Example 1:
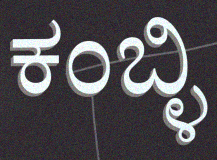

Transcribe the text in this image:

ಕಂಬ್ಳಿ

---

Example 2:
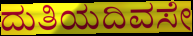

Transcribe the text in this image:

ದುತಿಯದಿವಸೇ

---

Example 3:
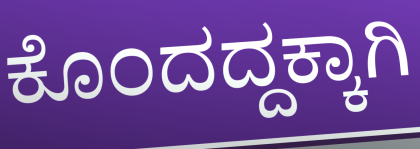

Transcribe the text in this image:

ಕೊಂದದ್ದಕ್ಕಾಗಿ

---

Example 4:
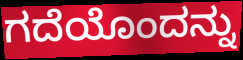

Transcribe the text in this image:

ಗದೆಯೊಂದನ್ನು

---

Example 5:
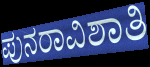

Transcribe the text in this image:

ಪುನರಾವಿಶಾತಿ